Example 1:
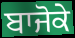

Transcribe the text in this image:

ਬਾਜੋਕੇ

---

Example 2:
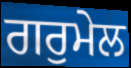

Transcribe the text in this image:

ਗਰੁਮੇਲ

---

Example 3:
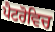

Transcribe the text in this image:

ਪੈਟਰੋਵਿਚ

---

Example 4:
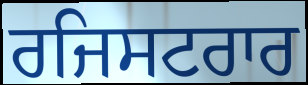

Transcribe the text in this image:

ਰਜਿਸਟਰਾਰ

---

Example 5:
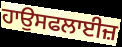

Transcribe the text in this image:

ਹਾਉਸਫਲਾਈਜ਼